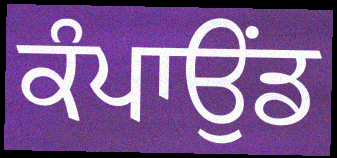
ਕੰਪਾਉਂਡ